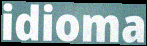
idioma